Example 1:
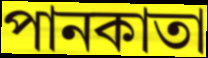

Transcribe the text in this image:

পানকাতা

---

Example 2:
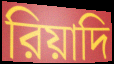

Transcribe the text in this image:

রিয়াদি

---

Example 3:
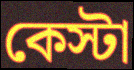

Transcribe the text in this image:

কেস্টা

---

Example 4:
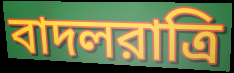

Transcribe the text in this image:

বাদলরাত্রি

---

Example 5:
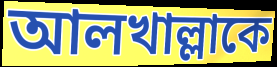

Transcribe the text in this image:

আলখাল্লাকে